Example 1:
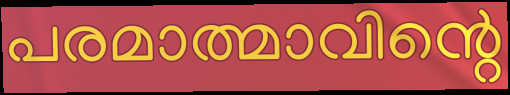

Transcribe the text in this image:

പരമാത്മാവിന്റെ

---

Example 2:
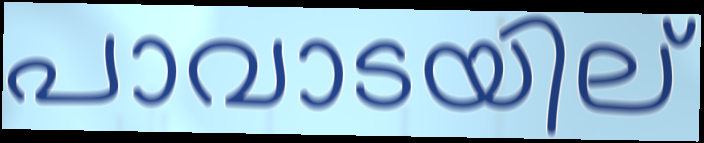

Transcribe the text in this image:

പാവാടയില്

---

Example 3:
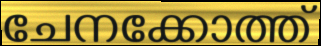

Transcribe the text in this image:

ചേനക്കോത്ത്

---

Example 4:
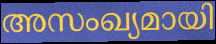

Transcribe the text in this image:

അസംഖ്യമായി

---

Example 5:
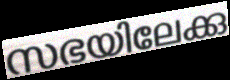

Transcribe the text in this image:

സഭയിലേക്കു